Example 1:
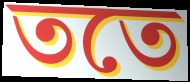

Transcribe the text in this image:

ততে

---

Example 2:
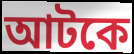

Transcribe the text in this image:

আটকে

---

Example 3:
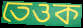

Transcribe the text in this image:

তেওক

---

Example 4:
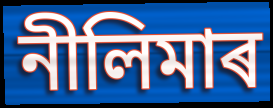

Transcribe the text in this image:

নীলিমাৰ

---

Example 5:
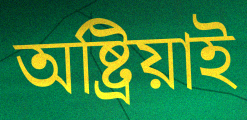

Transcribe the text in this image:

অষ্ট্ৰিয়াই